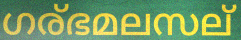
ഗര്ഭമലസല്